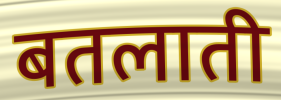
बतलाती